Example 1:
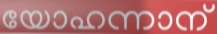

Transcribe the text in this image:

യോഹന്നാന്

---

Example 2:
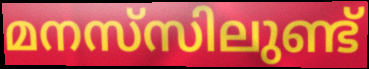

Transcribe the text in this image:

മനസ്‌സിലുണ്ട്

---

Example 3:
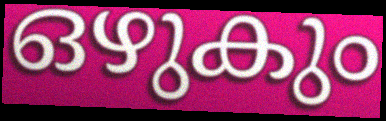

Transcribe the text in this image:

ഒഴുകും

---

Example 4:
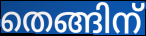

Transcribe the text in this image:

തെങ്ങിന്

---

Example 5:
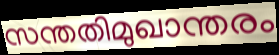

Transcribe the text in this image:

സന്തതിമുഖാന്തരം